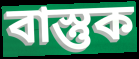
বাস্তুক